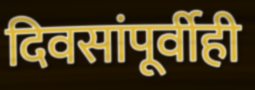
दिवसांपूर्वीही